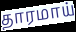
தாரமாய்